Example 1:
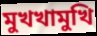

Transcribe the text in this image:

মুখখামুখি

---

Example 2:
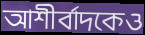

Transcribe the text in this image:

আশীর্বাদকেও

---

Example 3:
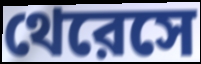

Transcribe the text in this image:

থেরেসে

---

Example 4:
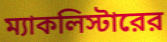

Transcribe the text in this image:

ম্যাকলিস্টারের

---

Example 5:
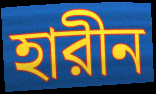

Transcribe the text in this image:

হারীন